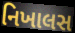
નિખાલસ